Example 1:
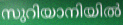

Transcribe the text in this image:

സുറിയാനിയിൽ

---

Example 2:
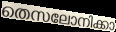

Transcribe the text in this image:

തെസലോനിക്കാ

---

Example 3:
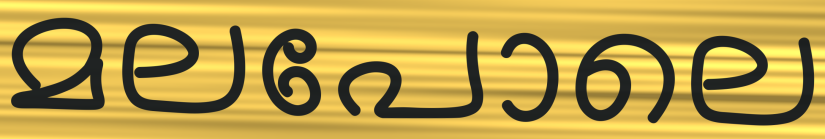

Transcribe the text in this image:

മലപോലെ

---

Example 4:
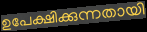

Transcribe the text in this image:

ഉപേക്ഷിക്കുന്നതായി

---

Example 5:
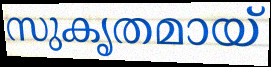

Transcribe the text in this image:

സുകൃതമായ്